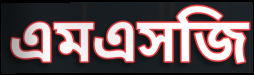
এমএসজি